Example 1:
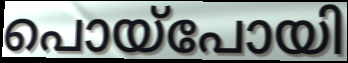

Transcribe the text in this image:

പൊയ്പോയി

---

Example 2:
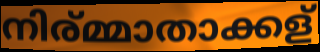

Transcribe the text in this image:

നിര്മ്മാതാക്കള്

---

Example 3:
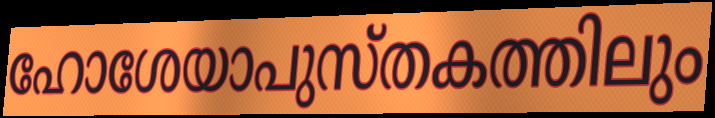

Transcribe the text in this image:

ഹോശേയാപുസ്തകത്തിലും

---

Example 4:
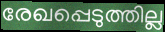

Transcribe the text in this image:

രേഖപ്പെടുത്തില്ല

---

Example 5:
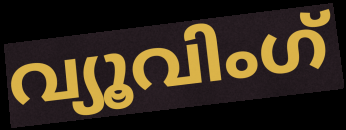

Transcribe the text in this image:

വ്യൂവിംഗ്